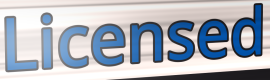
Licensed